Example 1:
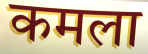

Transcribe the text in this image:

कमला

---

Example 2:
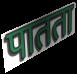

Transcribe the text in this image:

पातता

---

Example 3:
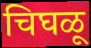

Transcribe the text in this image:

चिघळू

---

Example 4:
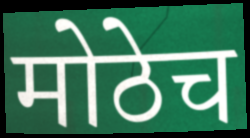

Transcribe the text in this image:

मोठेच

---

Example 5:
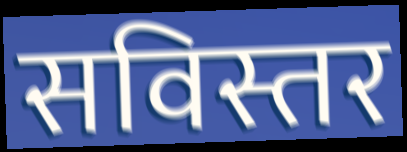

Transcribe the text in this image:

सविस्तर